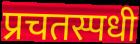
प्रचतस्पधी